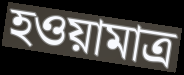
হওয়ামাত্র